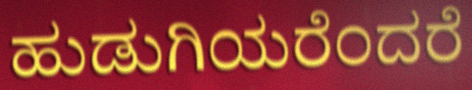
ಹುಡುಗಿಯರೆಂದರೆ